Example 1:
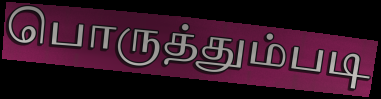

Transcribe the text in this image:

பொருத்தும்படி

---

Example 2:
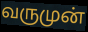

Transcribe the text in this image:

வருமுன்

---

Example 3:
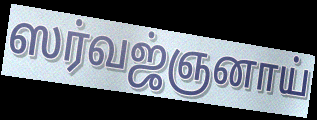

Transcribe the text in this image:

ஸர்வஜ்ஞனாய்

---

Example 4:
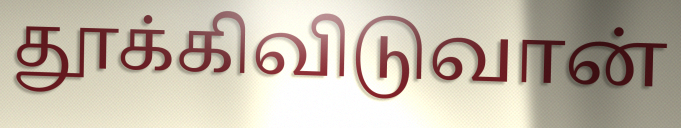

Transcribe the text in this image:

தூக்கிவிடுவான்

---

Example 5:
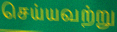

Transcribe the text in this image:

செய்யவற்று